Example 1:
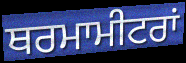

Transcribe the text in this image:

ਥਰਮਾਮੀਟਰਾਂ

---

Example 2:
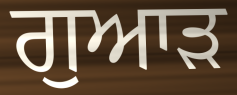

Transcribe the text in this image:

ਗੁਆੜ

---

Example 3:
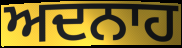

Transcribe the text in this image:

ਅਦਨਾਹ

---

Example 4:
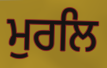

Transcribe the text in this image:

ਮੁਰਲਿ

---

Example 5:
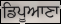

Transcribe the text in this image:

ਡਿਪੂਆਣਾ